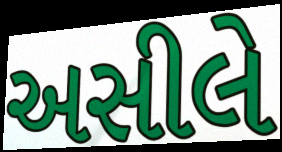
અસીલે